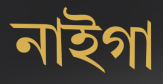
নাইগা